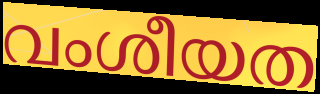
വംശീയത